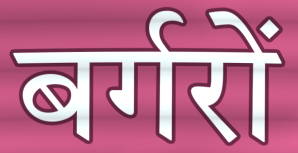
बर्गरों